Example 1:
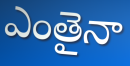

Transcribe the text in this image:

ఎంతైనా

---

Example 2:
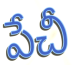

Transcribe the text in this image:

పేచీ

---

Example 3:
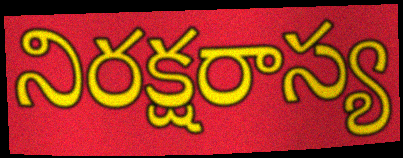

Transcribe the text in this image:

నిరక్షరాస్య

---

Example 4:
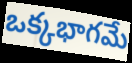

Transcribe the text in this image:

ఒక్కభాగమే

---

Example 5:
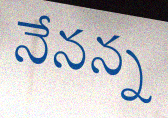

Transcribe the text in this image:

నేనన్న